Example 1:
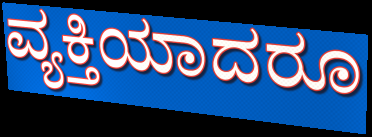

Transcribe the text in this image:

ವ್ಯಕ್ತಿಯಾದರೂ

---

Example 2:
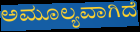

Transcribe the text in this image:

ಅಮೂಲ್ಯವಾಗಿದೆ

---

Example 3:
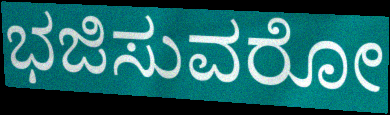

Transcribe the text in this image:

ಭಜಿಸುವರೋ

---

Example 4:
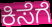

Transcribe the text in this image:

ಕಿಸೆಗೆ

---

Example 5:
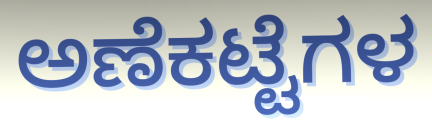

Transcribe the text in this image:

ಅಣೆಕಟ್ಟೆಗಳ